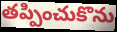
తప్పించుకొను